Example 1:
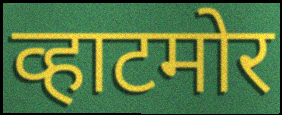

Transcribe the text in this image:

व्हाटमोर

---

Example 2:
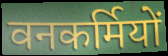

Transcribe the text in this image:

वनकर्मियों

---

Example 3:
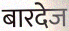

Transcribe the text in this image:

बारदेज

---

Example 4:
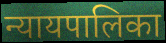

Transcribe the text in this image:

न्यायपालिका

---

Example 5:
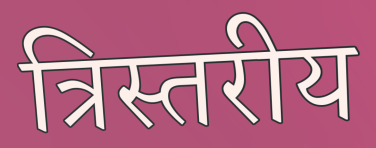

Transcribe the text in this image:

त्रिस्तरीय